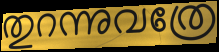
തുറന്നുവത്രേ